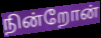
நின்றோன்